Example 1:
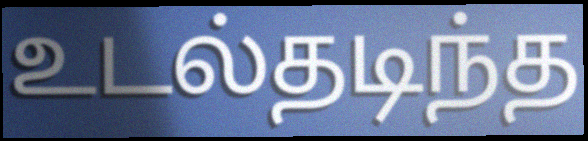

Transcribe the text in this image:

உடல்தடிந்த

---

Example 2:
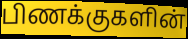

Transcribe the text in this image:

பிணக்குகளின்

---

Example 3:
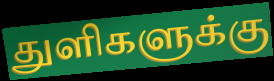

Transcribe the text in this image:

துளிகளுக்கு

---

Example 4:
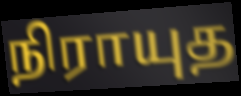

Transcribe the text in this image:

நிராயுத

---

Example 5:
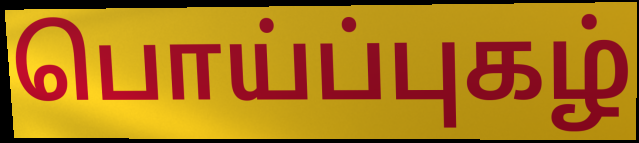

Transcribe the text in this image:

பொய்ப்புகழ்